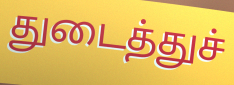
துடைத்துச்